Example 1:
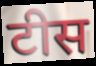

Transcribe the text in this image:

टीस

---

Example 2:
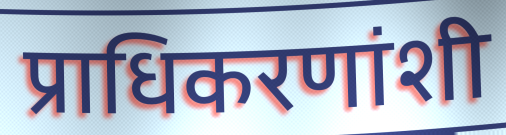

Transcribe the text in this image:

प्राधिकरणांशी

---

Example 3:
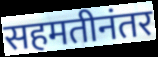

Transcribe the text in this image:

सहमतीनंतर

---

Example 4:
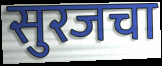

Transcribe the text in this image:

सुरजचा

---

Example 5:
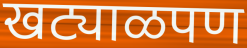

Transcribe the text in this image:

खट्याळपण